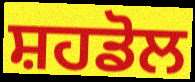
ਸ਼ਹਡੋਲ